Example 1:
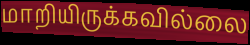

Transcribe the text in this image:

மாறியிருக்கவில்லை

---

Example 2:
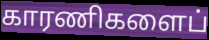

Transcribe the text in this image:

காரணிகளைப்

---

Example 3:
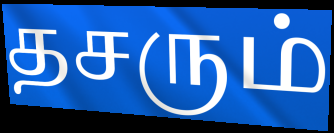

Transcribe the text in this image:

தசரும்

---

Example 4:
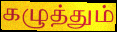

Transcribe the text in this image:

கழுத்தும்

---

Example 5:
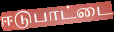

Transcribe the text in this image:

ஈடுபாட்டை